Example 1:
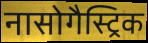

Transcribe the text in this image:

नासोगैस्ट्रिक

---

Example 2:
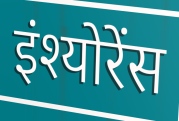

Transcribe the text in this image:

इंश्योरेंस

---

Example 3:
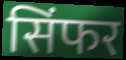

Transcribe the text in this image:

सिंफर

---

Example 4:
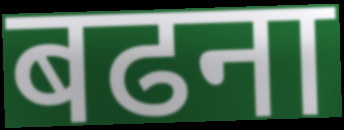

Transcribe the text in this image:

बढना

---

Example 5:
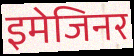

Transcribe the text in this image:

इमेजिनर